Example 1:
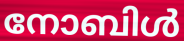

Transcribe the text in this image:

നോബിൾ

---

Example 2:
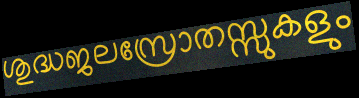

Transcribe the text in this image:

ശുദ്ധജലസ്രോതസ്സുകളും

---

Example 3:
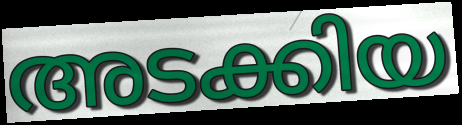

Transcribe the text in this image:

അടക്കിയ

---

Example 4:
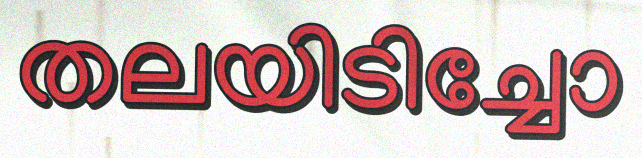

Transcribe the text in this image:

തലയിടിച്ചോ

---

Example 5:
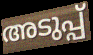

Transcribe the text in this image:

അടുപ്പ്